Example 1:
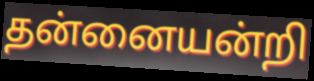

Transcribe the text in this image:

தன்னையன்றி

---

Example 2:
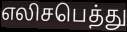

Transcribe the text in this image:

எலிசபெத்து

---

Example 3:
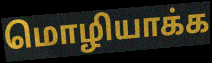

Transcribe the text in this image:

மொழியாக்க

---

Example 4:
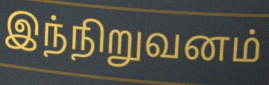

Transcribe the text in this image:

இந்நிறுவனம்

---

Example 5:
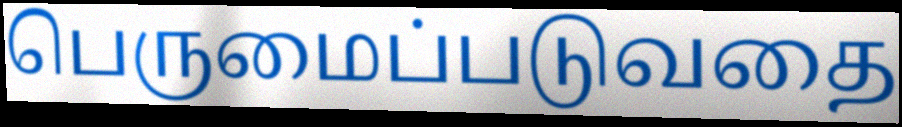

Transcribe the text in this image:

பெருமைப்படுவதை